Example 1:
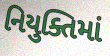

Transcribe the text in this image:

નિયુક્તિમાં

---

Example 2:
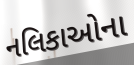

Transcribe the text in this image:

નલિકાઓના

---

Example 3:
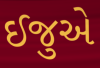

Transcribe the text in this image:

ઈજુએ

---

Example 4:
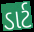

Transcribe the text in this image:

ડાર્ટ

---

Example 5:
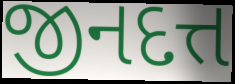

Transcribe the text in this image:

જીનદત્ત